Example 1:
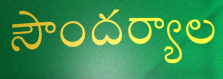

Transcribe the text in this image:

సౌందర్యాల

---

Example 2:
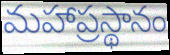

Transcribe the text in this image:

మహాప్రస్థానం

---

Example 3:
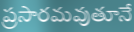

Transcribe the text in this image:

ప్రసారమవుతూనే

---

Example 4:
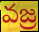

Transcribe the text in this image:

వజ్ర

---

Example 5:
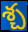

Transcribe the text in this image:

శ్చ